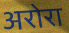
अरोरा